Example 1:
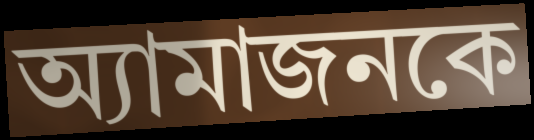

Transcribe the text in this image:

অ্যামাজনকে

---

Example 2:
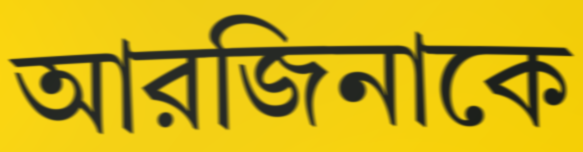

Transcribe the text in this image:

আরজিনাকে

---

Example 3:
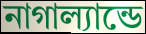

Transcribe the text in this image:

নাগাল্যান্ডে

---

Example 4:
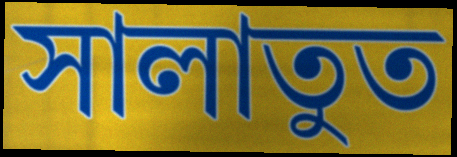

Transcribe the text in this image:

সালাতুত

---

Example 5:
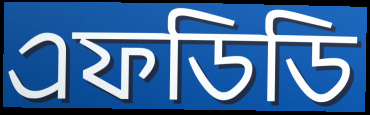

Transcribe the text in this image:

এফডিডি